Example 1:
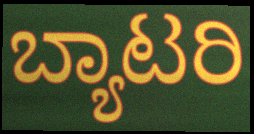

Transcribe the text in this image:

ಬ್ಯಾಟರಿ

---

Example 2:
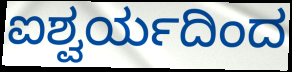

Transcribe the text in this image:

ಐಶ್ವರ್ಯದಿಂದ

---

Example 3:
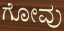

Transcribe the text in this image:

ಗೋವು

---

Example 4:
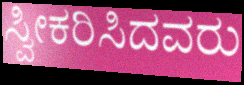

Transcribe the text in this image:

ಸ್ವೀಕರಿಸಿದವರು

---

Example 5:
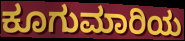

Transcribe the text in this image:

ಕೂಗುಮಾರಿಯ